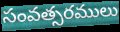
సంవత్సరములు